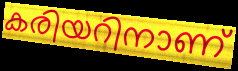
കരിയറിനാണ്